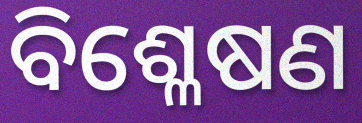
ବିଶ୍ଳେଷଣ